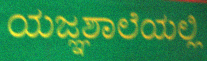
ಯಜ್ಞಶಾಲೆಯಲ್ಲಿ